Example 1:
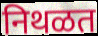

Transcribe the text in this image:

निथळत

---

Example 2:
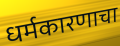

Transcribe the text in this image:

धर्मकारणाचा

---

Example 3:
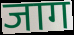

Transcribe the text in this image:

जाग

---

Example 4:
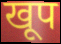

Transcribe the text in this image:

खूप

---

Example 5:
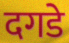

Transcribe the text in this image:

दगडे